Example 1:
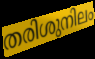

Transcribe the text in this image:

തരിശുനിലം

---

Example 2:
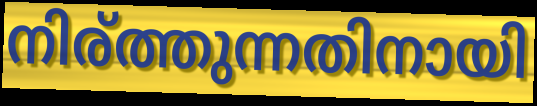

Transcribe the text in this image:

നിര്ത്തുന്നതിനായി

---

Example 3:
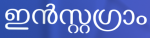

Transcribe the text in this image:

ഇൻസ്റ്റഗ്രാം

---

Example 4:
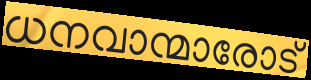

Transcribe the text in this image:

ധനവാന്മാരോട്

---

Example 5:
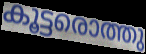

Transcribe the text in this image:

കൂട്ടരൊത്തു